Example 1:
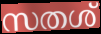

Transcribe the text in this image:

സതശ്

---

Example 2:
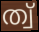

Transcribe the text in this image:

ത്വ്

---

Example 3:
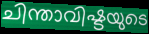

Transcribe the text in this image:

ചിന്താവിഷ്ടയുടെ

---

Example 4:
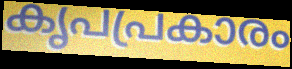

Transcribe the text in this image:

കൃപപ്രകാരം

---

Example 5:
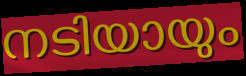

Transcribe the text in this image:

നടിയായും